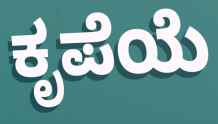
ಕೃಪೆಯೆ